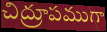
చిద్రూపముగా